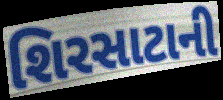
શિરસાટાની